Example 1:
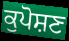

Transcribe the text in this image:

ਕੁਪੋਸ਼ਣ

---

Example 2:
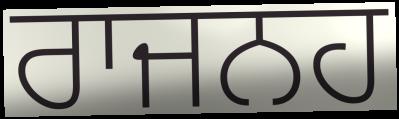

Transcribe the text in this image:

ਰਾਜਨਹ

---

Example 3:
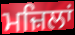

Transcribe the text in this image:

ਮਜ਼ਿਲਾਂ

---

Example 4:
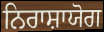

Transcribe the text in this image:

ਨਿਰਾਸ਼ਾਯੋਗ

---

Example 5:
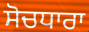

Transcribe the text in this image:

ਸੋਚਧਾਰਾ